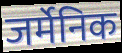
जर्मेनिक